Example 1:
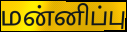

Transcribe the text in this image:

மன்னிப்பு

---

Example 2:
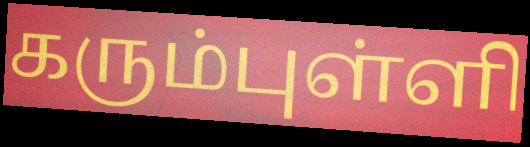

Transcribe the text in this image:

கரும்புள்ளி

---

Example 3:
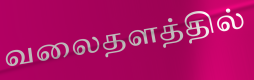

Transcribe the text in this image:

வலைதளத்தில்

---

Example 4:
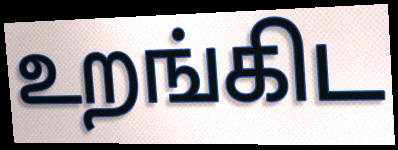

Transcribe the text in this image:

உறங்கிட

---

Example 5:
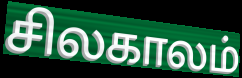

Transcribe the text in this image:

சிலகாலம்